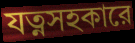
যত্নসহকারে